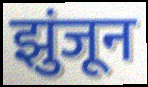
झुंजून